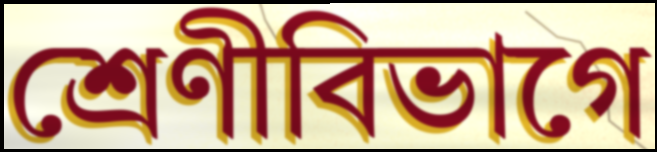
শ্রেণীবিভাগে